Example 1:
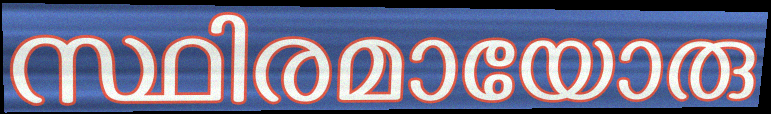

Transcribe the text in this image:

സ്ഥിരമായോരു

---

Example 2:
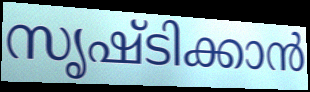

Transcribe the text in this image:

സൃഷ്ടിക്കാൻ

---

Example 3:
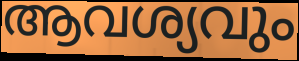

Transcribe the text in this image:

ആവശ്യവും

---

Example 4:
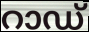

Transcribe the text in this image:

റാഡ്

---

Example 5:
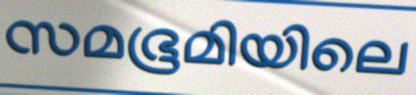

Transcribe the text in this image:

സമഭൂമിയിലെ